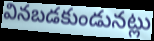
వినబడకుండునట్లు